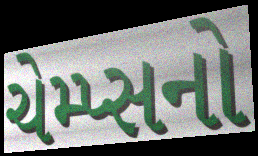
ચેમ્પ્સનો